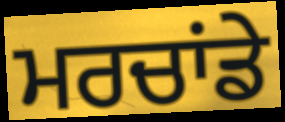
ਮਰਚਾਂਡੇ